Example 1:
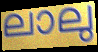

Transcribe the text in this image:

ലാലു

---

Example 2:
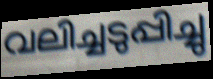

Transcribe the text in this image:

വലിച്ചടുപ്പിച്ചു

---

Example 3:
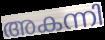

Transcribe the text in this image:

അകന്നി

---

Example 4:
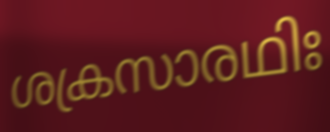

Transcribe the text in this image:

ശക്രസാരഥിഃ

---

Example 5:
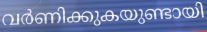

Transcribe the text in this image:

വർണിക്കുകയുണ്ടായി